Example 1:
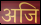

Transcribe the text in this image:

अजि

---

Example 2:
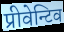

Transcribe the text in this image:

प्रीवेन्टिव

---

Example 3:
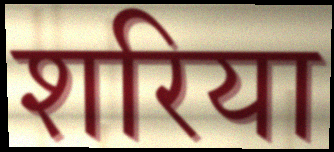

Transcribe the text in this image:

शरिया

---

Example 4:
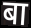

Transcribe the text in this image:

बा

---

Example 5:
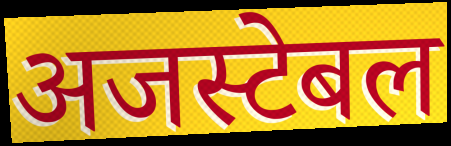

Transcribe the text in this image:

अजस्टेबल